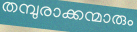
തമ്പുരാക്കന്മാരും